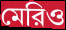
মেরিও